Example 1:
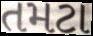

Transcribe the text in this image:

તમટા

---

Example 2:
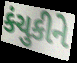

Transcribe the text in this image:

કંચુકીને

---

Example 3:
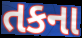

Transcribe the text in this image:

તકના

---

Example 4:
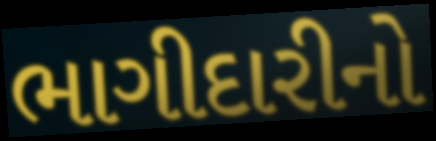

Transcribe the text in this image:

ભાગીદારીનો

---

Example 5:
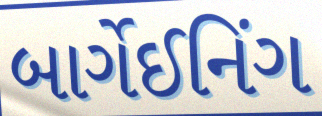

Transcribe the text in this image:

બાર્ગેઈનિંગ